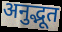
अनुद्भूत